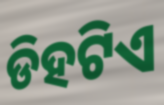
ଡିହଟିଏ